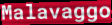
Malavaggo